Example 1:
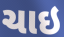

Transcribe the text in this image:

ચાઇ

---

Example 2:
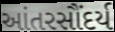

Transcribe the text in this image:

આંતરસૌંદર્ય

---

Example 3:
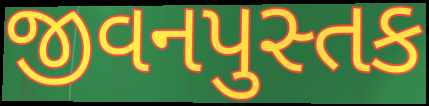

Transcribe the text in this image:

જીવનપુસ્તક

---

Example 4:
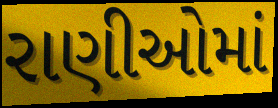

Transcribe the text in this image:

રાણીઓમાં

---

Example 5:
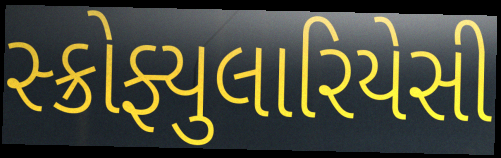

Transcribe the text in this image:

સ્ક્રોફ્યુલારિયેસી